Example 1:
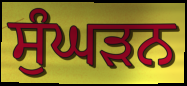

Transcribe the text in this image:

ਸੁੰਘੜਨ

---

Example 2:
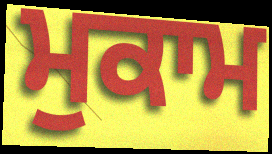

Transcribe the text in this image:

ਮੁਕਾਮ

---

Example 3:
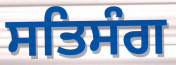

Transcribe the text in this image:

ਸਤਿਸੰਗ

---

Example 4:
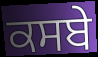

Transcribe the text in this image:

ਕਸਬੇ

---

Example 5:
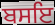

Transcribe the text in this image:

ਬਸਇ